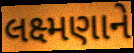
લક્ષ્મણાને